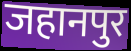
जहानपुर